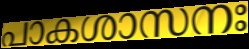
പാകശാസനഃ